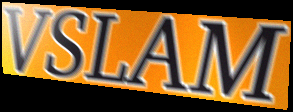
VSLAM